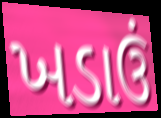
ખડાઉં